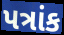
પત્રાંક